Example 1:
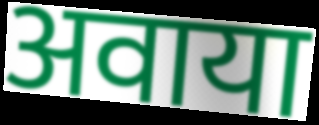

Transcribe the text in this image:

अवाया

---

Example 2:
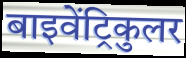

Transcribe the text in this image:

बाइवेंट्रिकुलर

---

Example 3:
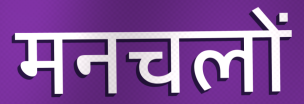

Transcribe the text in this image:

मनचलों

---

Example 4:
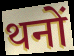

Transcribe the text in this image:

थनों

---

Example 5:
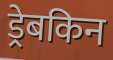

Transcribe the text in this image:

ड्रेबकिन